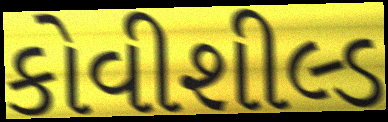
કોવીશીલ્ડ